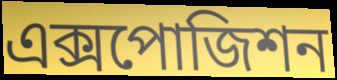
এক্সপোজিশন